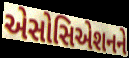
એસોસિએશનને